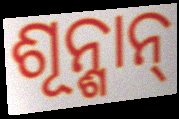
ଶୂନ୍ଶାନ୍